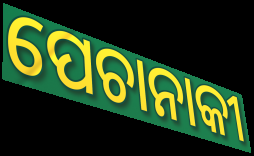
ପେଚାନାକୀ